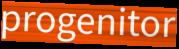
progenitor